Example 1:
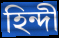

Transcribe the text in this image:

হিন্দী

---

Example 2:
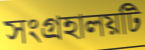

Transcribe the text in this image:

সংগ্রহালয়টি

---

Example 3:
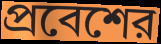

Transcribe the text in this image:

প্রবেশের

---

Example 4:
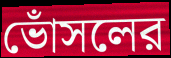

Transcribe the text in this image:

ভোঁসলের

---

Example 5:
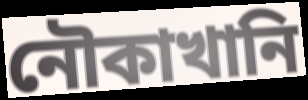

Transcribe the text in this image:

নৌকাখানি